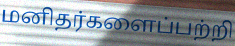
மனிதர்களைப்பற்றி